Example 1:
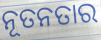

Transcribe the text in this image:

ନୂତନତାର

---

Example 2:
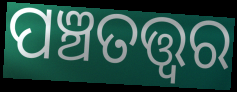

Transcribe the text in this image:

ପଞ୍ଚତତ୍ତ୍ୱର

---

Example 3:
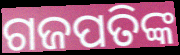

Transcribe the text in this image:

ଗଜପତିଙ୍କ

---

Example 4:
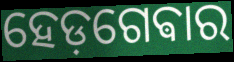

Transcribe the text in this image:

ହେଡ଼ଗେଵାର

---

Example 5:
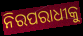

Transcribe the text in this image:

ନିରପରାଧୀକୁ